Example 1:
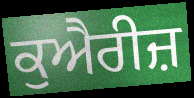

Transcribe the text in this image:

ਕੁਐਰੀਜ਼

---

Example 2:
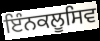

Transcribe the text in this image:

ਇੰਨਕਲੂਸਿਵ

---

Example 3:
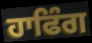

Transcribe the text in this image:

ਹਾਫਿੰਗ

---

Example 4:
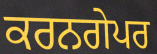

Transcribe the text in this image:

ਕਰਨਗੇਪਰ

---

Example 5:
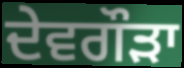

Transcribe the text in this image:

ਦੇਵਗੌੜਾ